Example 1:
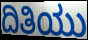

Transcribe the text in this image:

ದಿತಿಯು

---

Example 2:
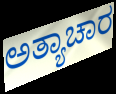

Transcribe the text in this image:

ಅತ್ಯಾಚಾರ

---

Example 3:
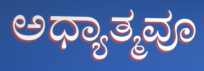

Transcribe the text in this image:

ಅಧ್ಯಾತ್ಮವೂ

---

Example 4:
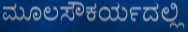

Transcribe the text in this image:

ಮೂಲಸೌಕರ್ಯದಲ್ಲಿ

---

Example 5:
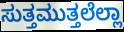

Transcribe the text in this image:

ಸುತ್ತಮುತ್ತಲೆಲ್ಲಾ